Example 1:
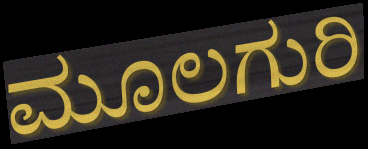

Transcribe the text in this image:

ಮೂಲಗುರಿ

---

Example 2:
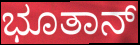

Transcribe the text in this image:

ಭೂತಾನ್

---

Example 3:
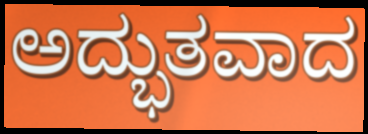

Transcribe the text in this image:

ಅದ್ಭುತವಾದ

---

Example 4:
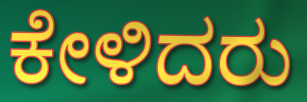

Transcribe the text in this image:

ಕೇಳಿದರು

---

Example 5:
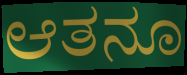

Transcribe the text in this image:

ಆತನೂ